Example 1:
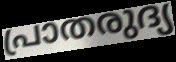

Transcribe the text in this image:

പ്രാതരുദ്യ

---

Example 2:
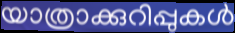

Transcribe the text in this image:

യാത്രാക്കുറിപ്പുകൾ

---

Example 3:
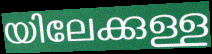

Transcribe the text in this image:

യിലേക്കുള്ള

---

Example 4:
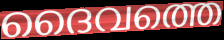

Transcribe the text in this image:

ദൈവത്തെ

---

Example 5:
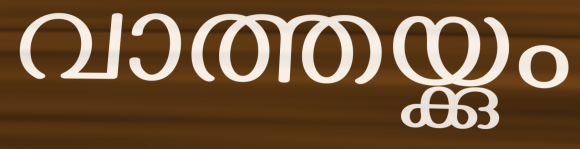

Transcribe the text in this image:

വാത്തയ്ക്കും